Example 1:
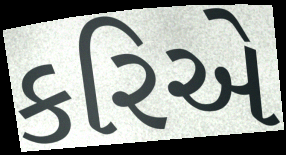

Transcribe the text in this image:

કરિએ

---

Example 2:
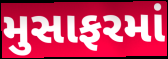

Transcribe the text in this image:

મુસાફરમાં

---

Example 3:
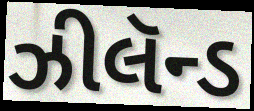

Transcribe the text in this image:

ઝીલૅન્ડ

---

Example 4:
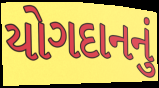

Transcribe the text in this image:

યોગદાનનું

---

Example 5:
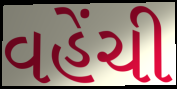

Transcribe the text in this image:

વહેંચી